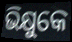
ଭିକ୍ଷୁକେ